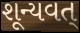
શૂન્યવત્